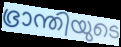
ഭ്രാന്തിയുടെ